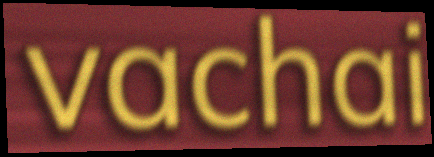
vachai